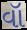
વૉ